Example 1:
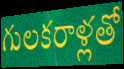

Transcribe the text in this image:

గులకరాళ్లతో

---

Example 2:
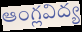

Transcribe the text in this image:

ఆంగ్లవిద్య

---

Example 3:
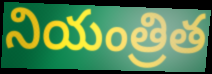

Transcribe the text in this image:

నియంత్రిత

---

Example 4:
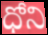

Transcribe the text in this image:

ధోని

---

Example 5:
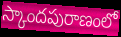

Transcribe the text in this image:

స్కాందపురాణంలో